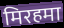
मिरहमा